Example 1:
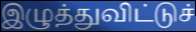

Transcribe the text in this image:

இழுத்துவிட்டுச்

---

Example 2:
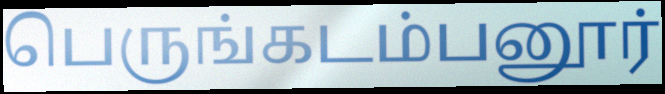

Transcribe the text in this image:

பெருங்கடம்பனூர்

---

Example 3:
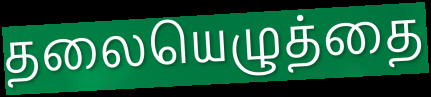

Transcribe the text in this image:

தலையெழுத்தை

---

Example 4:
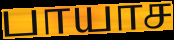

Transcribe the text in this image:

பாயாச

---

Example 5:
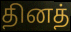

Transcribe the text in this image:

தினத்